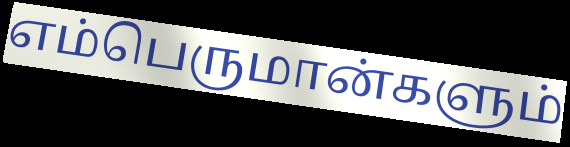
எம்பெருமான்களும்